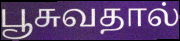
பூசுவதால்